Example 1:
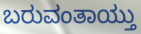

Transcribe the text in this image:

ಬರುವಂತಾಯ್ತು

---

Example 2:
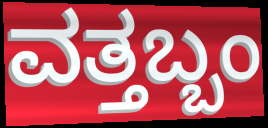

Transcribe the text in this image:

ವತ್ತಬ್ಬಂ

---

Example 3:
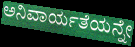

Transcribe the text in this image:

ಅನಿವಾರ್ಯತೆಯನ್ನೇ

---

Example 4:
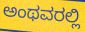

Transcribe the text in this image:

ಅಂಥವರಲ್ಲಿ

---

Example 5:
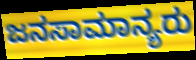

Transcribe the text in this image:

ಜನಸಾಮಾನ್ಯರು